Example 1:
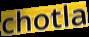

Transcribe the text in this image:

chotla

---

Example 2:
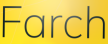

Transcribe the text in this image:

Farch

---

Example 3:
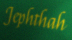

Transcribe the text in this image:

Jephthah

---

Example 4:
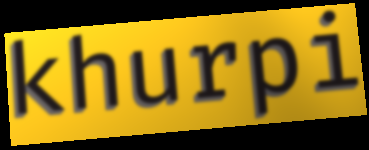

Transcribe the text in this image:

khurpi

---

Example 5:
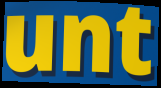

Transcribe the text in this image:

unt